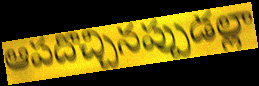
ఆపదొచ్చినప్పుడల్లా